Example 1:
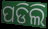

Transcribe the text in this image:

ପଡିଲି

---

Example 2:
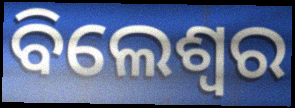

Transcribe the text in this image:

ବିଲେଶ୍ଵର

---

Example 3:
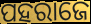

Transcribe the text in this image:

ପହରାଜେ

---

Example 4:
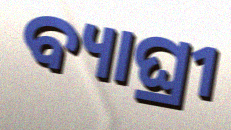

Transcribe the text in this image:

ବ୍ୟାଘ୍ରୀ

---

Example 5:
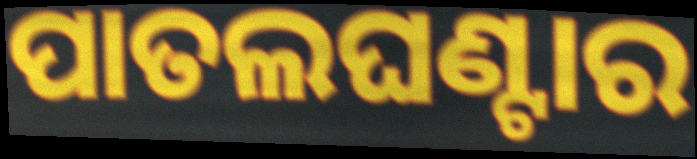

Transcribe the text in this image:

ପାତଲଘଣ୍ଟାର